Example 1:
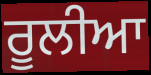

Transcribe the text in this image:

ਰੂਲੀਆ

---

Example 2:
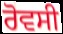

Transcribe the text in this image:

ਰੋਵਸੀ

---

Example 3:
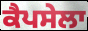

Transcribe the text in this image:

ਕੈਪਸੇਲਾ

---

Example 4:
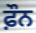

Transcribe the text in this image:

ਫ਼ੌਨ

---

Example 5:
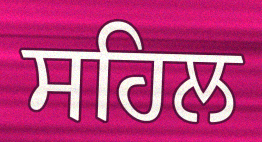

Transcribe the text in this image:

ਸਹਿਲ